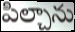
పిల్చాను